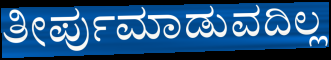
ತೀರ್ಪುಮಾಡುವದಿಲ್ಲ